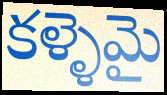
కళ్ళెమై